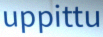
uppittu